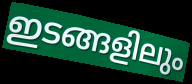
ഇടങ്ങളിലും